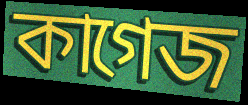
কাগেজ